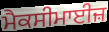
ਮੈਕਸੀਮਾਈਜ਼